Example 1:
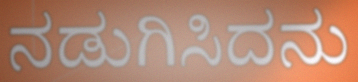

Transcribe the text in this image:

ನಡುಗಿಸಿದನು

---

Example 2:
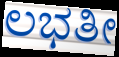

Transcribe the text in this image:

ಲಭತೀ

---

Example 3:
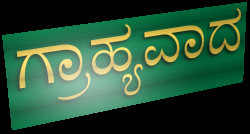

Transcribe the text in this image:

ಗ್ರಾಹ್ಯವಾದ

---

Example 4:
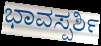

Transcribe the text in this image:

ಭಾವಸ್ಪರ್ಶಿ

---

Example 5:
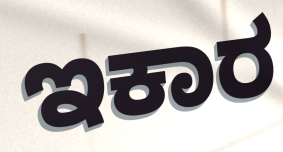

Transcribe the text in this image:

ಇಕಾರ